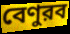
বেণুরব